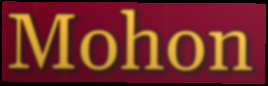
Mohon